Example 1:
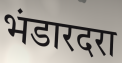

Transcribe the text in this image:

भंडारदरा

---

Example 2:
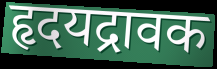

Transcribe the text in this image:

हृदयद्रावक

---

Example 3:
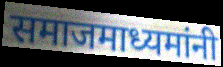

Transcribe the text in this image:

समाजमाध्यमांनी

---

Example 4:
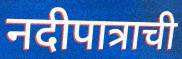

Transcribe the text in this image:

नदीपात्राची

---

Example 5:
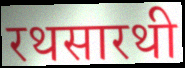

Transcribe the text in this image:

रथसारथी